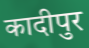
कादीपुर